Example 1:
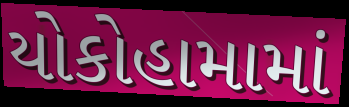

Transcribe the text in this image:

યોકોહામામાં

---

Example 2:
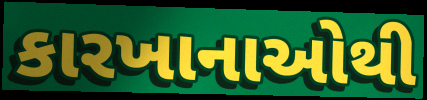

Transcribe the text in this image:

કારખાનાઓથી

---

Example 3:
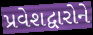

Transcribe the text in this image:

પ્રવેશદ્વારોને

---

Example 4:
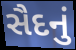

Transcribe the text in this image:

સૈદનું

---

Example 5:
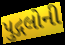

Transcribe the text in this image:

પુદ્ગલોની